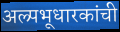
अल्पभूधारकांची